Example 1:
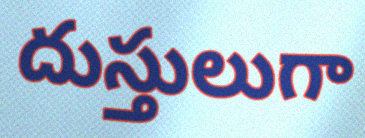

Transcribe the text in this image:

దుస్తులుగా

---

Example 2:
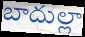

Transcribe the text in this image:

బాదుల్లా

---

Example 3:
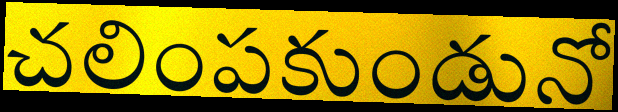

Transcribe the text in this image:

చలింపకుండునో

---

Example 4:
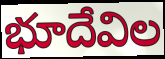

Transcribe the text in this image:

భూదేవిల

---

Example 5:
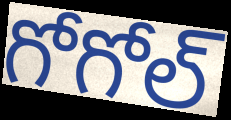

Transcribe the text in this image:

గోగోల్